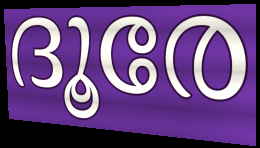
ദൂരേ